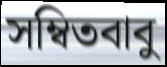
সম্বিতবাবু